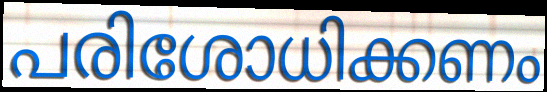
പരിശോധിക്കണം